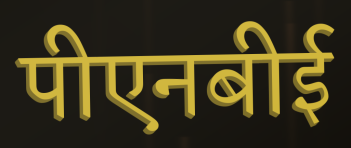
पीएनबीई